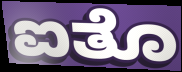
ಐತೊ